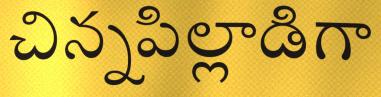
చిన్నపిల్లాడిగా